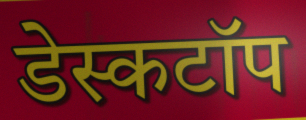
डेस्कटॉप